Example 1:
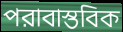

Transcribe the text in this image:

পরাবাস্তবিক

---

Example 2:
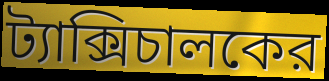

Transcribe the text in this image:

ট্যাক্সিচালকের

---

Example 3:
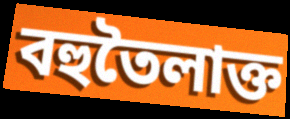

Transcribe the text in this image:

বহুতৈলাক্ত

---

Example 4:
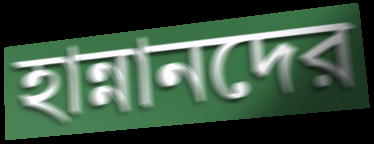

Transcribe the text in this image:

হান্নানদের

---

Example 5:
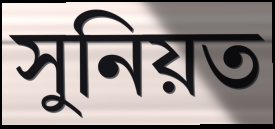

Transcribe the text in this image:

সুনিয়ত